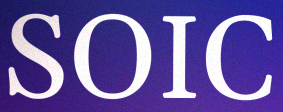
SOIC